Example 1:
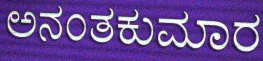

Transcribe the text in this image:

ಅನಂತಕುಮಾರ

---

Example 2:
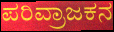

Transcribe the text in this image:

ಪರಿವ್ರಾಜಕನ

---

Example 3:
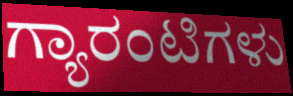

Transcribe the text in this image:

ಗ್ಯಾರಂಟಿಗಳು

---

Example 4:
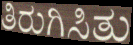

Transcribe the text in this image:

ತಿರುಗಿಸಿತು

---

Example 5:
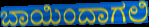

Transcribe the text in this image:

ಬಾಯಿಂದಾಗಲಿ